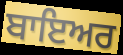
ਬਾਇਅਰ